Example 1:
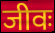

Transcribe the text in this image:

जीवः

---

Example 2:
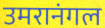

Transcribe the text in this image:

उमरानंगल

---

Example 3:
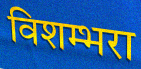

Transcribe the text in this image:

विशम्भरा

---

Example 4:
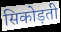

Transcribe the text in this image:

सिकोड़ती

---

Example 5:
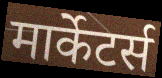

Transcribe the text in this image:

मार्केटर्स